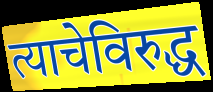
त्याचेविरुद्ध